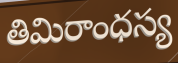
తిమిరాంధస్య